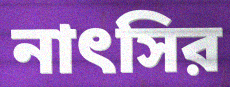
নাৎসির